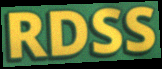
RDSS